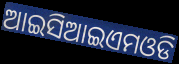
ଆଇସିଆଇଏମଓଡି